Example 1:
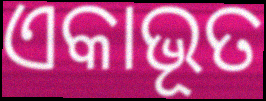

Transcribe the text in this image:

ଏକାଭୂତ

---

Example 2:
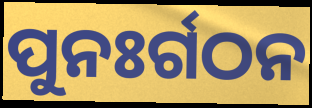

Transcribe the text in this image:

ପୁନଃର୍ଗଠନ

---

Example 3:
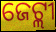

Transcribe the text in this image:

ଜେଟ୍ଲୀ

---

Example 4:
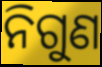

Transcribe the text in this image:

ନିଗୁଣ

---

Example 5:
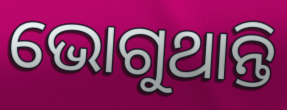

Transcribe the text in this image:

ଭୋଗୁଥାନ୍ତି